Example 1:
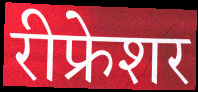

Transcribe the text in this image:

रीफ्रेशर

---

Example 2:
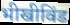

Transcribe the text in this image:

भीखीविंड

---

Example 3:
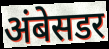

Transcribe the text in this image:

अंबेसडर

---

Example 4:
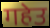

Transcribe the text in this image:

गहेउ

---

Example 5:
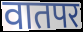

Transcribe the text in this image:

वातपर